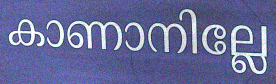
കാണാനില്ലേ